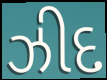
ઝીદ